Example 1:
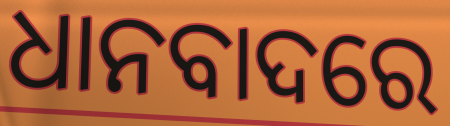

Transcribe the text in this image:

ଧାନବାଦରେ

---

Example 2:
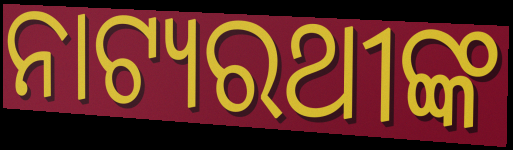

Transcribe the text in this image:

ନାଟ୍ୟରଥୀଙ୍କ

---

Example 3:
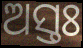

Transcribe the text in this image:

ଅସ୍ତଃ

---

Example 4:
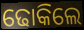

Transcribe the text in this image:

ଢୋକିଲେ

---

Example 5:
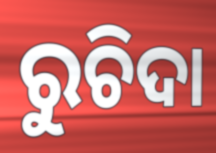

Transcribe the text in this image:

ରୁଚିଦା